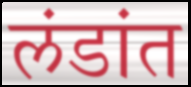
लंडांत